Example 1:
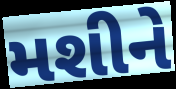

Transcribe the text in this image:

મશીને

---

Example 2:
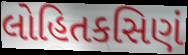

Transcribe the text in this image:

લોહિતકસિણં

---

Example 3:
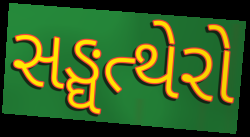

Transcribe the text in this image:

સઙ્ઘત્થેરો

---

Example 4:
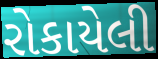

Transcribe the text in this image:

રોકાયેલી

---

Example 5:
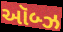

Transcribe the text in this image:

ઑબ્ઝ